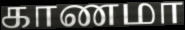
காணமா